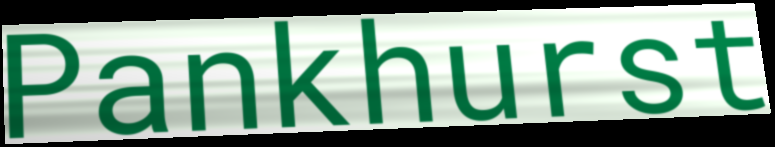
Pankhurst